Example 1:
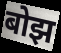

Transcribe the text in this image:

बोझ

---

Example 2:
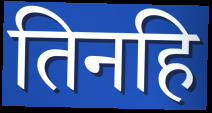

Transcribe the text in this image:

तिनहि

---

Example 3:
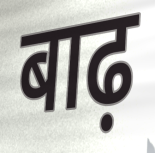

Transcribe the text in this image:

बाढ़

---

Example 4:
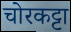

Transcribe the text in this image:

चोरकट्टा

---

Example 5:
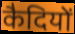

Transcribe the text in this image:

कैदियों